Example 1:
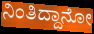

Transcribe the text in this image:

ನಿಂತಿದ್ದಾನೋ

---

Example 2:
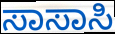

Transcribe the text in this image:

ಸಾಸಾಸಿ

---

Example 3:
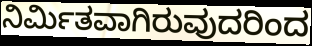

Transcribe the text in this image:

ನಿರ್ಮಿತವಾಗಿರುವುದರಿಂದ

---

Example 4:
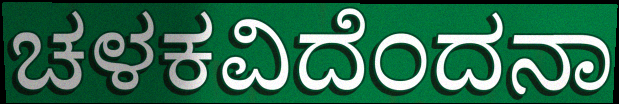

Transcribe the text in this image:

ಚಳಕವಿದೆಂದನಾ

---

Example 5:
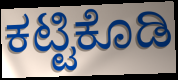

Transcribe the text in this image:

ಕಟ್ಟಿಕೊಡಿ